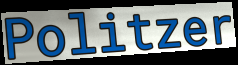
Politzer